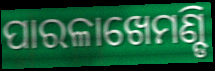
ପାରଳାଖେମଣ୍ଡି